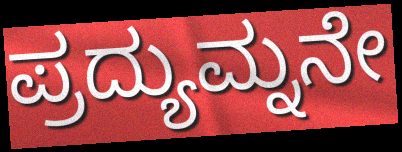
ಪ್ರದ್ಯುಮ್ನನೇ